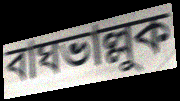
বাঘভাল্লুক